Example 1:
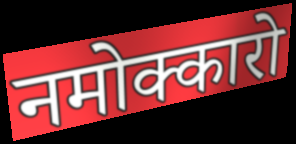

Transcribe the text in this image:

नमोक्कारो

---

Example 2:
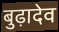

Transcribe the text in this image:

बुढ़ादेव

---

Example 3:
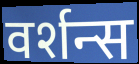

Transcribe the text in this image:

वर्शन्स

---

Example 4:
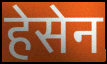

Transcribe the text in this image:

हेसेन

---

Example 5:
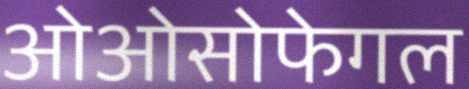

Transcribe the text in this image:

ओओसोफेगल